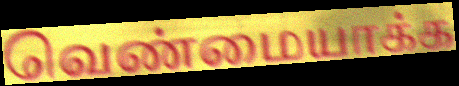
வெண்மையாக்க